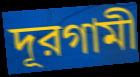
দূরগামী